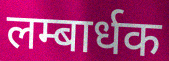
लम्बार्धक